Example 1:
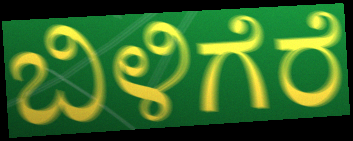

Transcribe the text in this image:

ಬಿಳಿಗೆರೆ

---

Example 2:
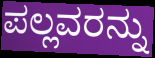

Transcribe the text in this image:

ಪಲ್ಲವರನ್ನು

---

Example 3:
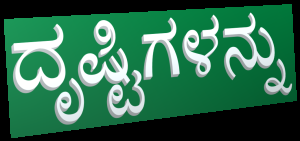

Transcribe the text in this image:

ದೃಷ್ಟಿಗಳನ್ನು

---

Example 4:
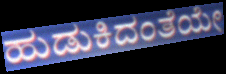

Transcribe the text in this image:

ಹುಡುಕಿದಂತೆಯೇ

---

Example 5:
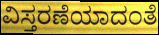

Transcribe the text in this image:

ವಿಸ್ತರಣೆಯಾದಂತೆ